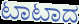
ಟಾಟಾದ